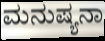
ಮನುಷ್ಯನಾ